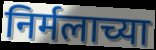
निर्मलाच्या